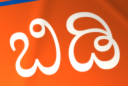
ಬಿಡಿ